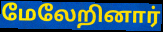
மேலேறினார்